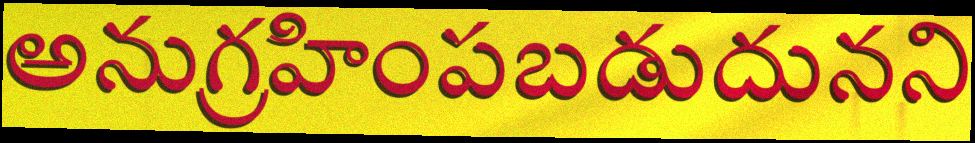
అనుగ్రహింపబడుదునని